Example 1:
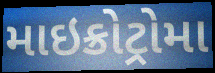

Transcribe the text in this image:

માઇક્રોટ્રોમા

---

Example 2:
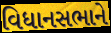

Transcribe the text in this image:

વિધાનસભાને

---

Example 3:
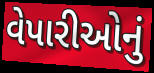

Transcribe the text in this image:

વેપારીઓનું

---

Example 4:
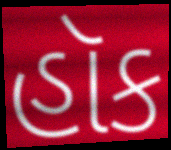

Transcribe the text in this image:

હૉક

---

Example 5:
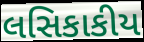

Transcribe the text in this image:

લસિકાકીય